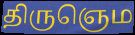
திருஞெம